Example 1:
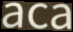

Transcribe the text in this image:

aca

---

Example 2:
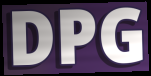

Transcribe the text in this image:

DPG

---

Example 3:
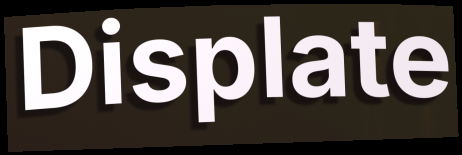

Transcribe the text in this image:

Displate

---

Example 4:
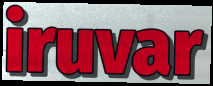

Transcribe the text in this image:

iruvar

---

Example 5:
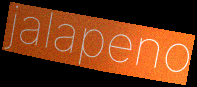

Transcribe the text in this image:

jalapeno